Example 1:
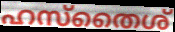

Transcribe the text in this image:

ഹസ്തൈശ്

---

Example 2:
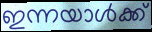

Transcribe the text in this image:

ഇന്നയാൾക്ക്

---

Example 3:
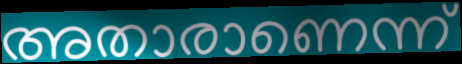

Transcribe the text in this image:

അതാരാണെന്ന്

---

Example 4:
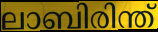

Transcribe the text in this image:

ലാബിരിന്ത്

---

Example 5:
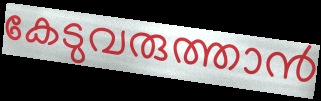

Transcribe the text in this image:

കേടുവരുത്താൻ